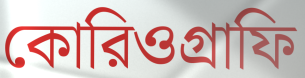
কোরিওগ্রাফি